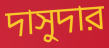
দাসুদার